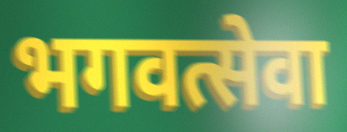
भगवत्सेवा